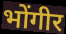
भोंगीर